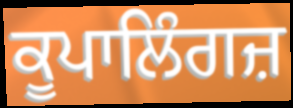
ਕੂਪਾਲਿੰਗਜ਼